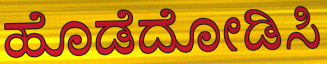
ಹೊಡೆದೋಡಿಸಿ